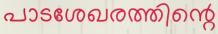
പാടശേഖരത്തിന്റെ